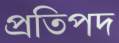
প্রতিপদ